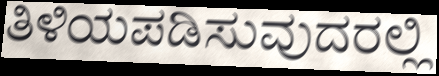
ತಿಳಿಯಪಡಿಸುವುದರಲ್ಲಿ